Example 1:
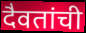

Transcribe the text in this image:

दैवतांची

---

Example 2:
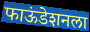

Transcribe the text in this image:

फाऊंडेशनला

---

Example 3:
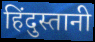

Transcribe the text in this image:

हिंदुस्तानी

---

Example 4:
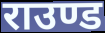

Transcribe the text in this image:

राउण्ड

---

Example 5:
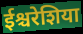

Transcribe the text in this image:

ईश्चरेशिया